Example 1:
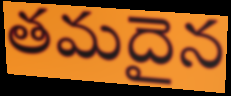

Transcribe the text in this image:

తమదైన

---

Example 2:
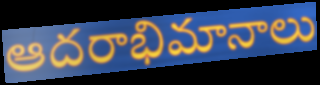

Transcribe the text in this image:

ఆదరాభిమానాలు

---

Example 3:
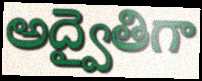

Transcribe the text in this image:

అద్వైతిగా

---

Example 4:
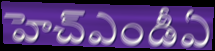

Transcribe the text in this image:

హెచ్ఎండీఏ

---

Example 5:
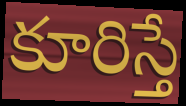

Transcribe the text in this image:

కూరిస్తే